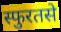
स्फुरतसे